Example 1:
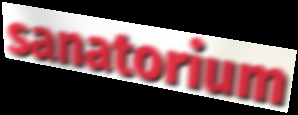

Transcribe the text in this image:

sanatorium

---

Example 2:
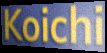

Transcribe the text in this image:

Koichi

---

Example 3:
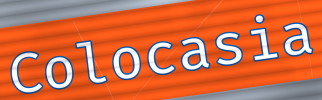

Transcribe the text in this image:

Colocasia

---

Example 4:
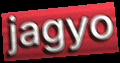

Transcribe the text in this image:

jagyo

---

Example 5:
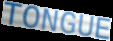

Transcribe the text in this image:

TONGUE